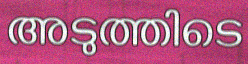
അടുത്തിടെ